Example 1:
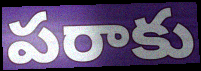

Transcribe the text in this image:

పరాకు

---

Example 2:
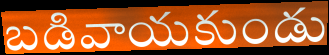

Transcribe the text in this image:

బడివాయకుండు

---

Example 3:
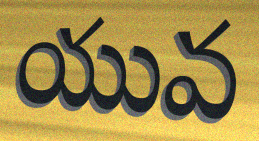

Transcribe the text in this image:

యువ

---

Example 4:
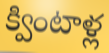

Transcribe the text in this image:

క్వింటాళ్ల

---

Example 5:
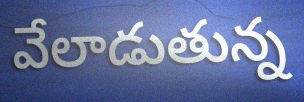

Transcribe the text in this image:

వేలాడుతున్న